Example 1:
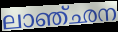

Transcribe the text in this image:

ലാഞ്ഛന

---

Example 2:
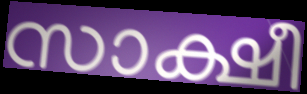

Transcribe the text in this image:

സാക്ഷീ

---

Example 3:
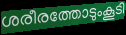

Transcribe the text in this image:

ശരീരത്തോടുംകൂടി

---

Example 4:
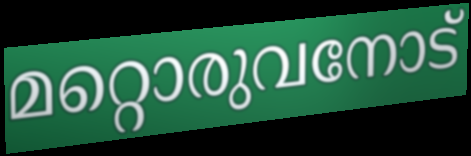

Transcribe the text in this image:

മറ്റൊരുവനോട്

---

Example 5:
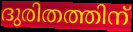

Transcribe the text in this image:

ദുരിതത്തിന്